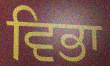
ਵਿਭਾ